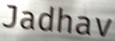
Jadhav